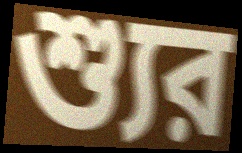
শ্যুর